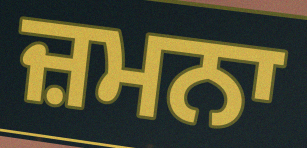
ਜ਼ਮਨਾ